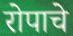
रोपाचे